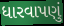
ધારવાપણું